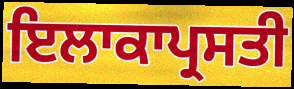
ਇਲਾਕਾਪ੍ਰਸਤੀ